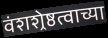
वंशश्रेष्ठत्वाच्या